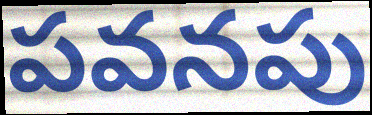
పవనపు